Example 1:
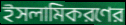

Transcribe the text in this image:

ইসলামিকরণের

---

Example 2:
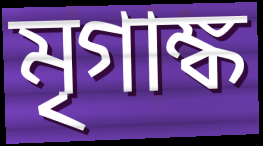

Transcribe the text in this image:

মৃগাঙ্ক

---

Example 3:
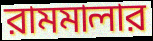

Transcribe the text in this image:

রামমালার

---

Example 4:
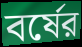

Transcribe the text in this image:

বর্ষের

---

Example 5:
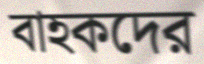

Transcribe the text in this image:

বাহকদের